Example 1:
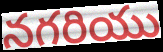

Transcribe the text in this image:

నగరియు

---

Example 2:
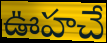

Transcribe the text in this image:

ఊహచే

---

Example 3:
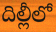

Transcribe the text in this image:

దిల్లీలో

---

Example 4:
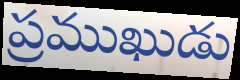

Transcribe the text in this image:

ప్రముఖుడు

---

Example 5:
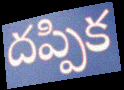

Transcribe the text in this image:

దప్పిక